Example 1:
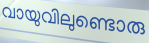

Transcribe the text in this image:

വായുവിലുണ്ടൊരു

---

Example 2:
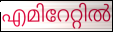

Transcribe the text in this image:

എമിറേറ്റിൽ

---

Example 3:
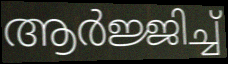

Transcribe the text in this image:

ആർജ്ജിച്ച്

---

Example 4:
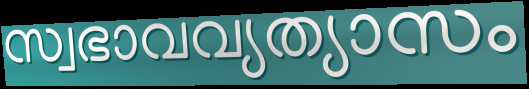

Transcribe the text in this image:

സ്വഭാവവ്യത്യാസം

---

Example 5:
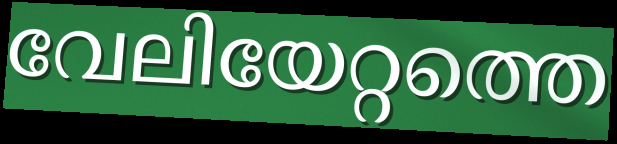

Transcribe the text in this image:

വേലിയേറ്റത്തെ